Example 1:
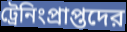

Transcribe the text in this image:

ট্রেনিংপ্রাপ্তদের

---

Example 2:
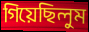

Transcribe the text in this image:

গিয়েছিলুম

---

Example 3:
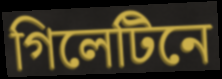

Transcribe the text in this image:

গিলেটিনে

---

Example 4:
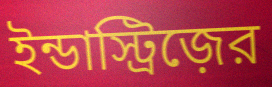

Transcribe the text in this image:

ইন্ডাস্ট্রিজ়ের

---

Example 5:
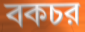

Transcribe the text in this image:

বকচর